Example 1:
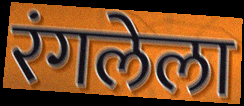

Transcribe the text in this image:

रंगलेला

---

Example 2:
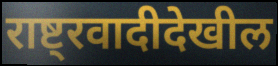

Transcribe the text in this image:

राष्ट्रवादीदेखील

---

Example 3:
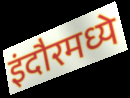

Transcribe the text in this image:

इंदौरमध्ये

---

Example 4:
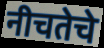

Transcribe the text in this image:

नीचतेचे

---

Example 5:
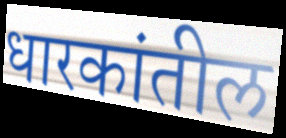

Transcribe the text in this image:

धारकांतील